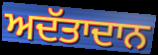
ਅਦੱਤਾਦਾਨ